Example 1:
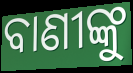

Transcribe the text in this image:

ବାଣୀଙ୍କୁ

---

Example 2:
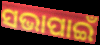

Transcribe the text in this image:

ସଭାପାଇଁ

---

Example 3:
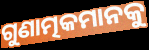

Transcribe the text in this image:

ଗୁଣାତ୍ମକମାନକୁ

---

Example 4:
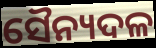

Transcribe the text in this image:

ସୈନ୍ୟଦଳ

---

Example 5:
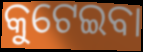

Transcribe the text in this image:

କୁଟେଇବା